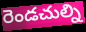
రెండచుల్ని